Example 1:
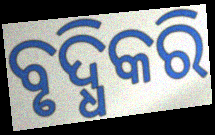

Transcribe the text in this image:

ବୃଦ୍ଧିକରି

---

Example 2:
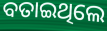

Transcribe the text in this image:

ବତାଇଥିଲେ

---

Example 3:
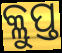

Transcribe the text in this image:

କ୍ଲୁପ୍ତ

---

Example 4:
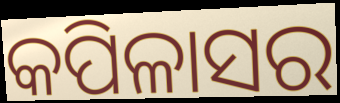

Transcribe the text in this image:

କପିଳାସର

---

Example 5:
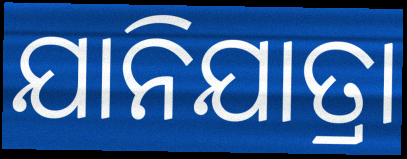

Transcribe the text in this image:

ଯାନିଯାତ୍ରା